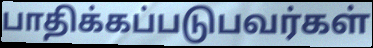
பாதிக்கப்படுபவர்கள்